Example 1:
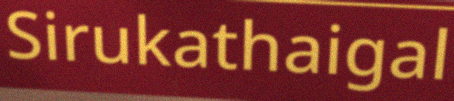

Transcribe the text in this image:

Sirukathaigal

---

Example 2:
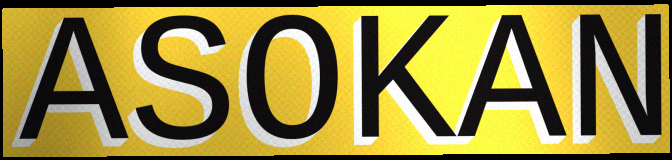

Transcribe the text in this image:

ASOKAN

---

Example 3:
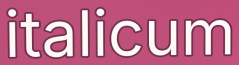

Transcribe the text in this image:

italicum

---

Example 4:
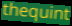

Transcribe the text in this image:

thequint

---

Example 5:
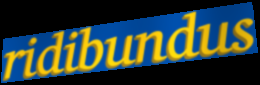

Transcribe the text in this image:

ridibundus